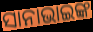
ସାନାଭାଇଙ୍କ